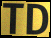
TD